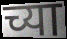
च्या